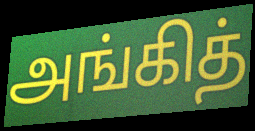
அங்கித்